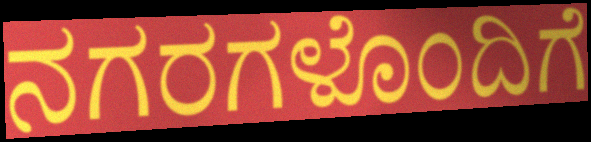
ನಗರಗಳೊಂದಿಗೆ